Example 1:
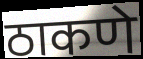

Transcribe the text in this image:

ठाकणे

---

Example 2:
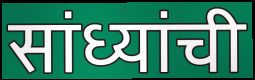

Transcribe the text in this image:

सांध्यांची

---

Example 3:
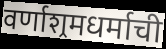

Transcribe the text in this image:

वर्णाश्रमधर्माची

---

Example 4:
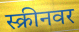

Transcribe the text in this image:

स्क्रीनवर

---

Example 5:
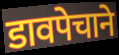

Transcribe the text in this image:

डावपेचाने